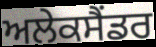
ਅਲੇਕਸੈਂਡਰ